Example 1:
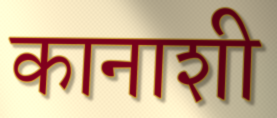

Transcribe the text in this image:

कानाशी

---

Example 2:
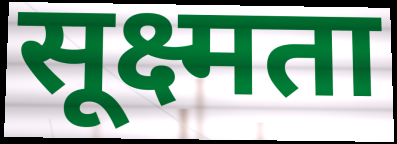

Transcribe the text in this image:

सूक्ष्मता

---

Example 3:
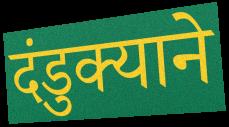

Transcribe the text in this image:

दंडुक्याने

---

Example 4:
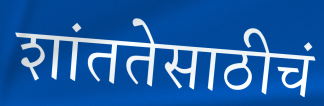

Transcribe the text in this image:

शांततेसाठीचं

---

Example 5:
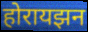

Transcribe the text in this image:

होरायझन